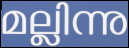
മല്ലിന്നു